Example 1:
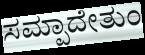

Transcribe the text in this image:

ಸಮ್ಪಾದೇತುಂ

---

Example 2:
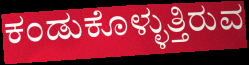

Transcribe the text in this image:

ಕಂಡುಕೊಳ್ಳುತ್ತಿರುವ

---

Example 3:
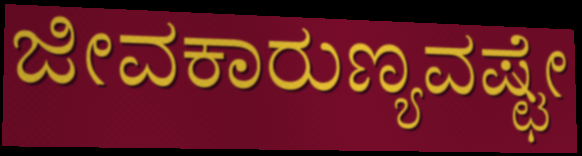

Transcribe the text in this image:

ಜೀವಕಾರುಣ್ಯವಷ್ಟೇ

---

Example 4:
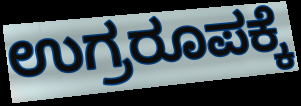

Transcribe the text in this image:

ಉಗ್ರರೂಪಕ್ಕೆ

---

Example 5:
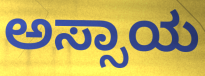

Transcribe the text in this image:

ಅಸ್ಸಾಯ